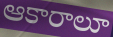
ఆకారాలూ